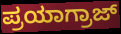
ಪ್ರಯಾಗ್ರಾಜ್